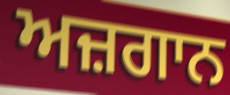
ਅਜ਼ਗਾਨ